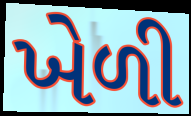
ખેળી